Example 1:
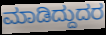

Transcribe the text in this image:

ಮಾಡಿದ್ದುದರ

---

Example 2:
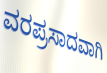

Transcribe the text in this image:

ವರಪ್ರಸಾದವಾಗಿ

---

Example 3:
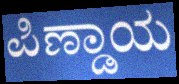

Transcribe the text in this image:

ಪಿಣ್ಡಾಯ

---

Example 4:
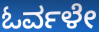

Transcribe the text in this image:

ಓರ್ವಳೇ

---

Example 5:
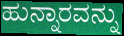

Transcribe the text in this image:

ಹುನ್ನಾರವನ್ನು